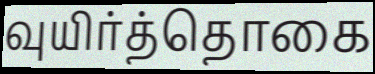
வுயிர்த்தொகை